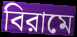
বিরামে